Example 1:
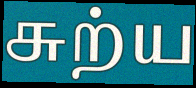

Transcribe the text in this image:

சுற்ய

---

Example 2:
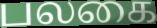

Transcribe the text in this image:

பலகை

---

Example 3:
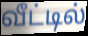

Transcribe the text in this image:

வீட்டில்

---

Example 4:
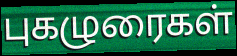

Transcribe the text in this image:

புகழுரைகள்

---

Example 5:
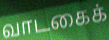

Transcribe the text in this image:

வாடகைக்